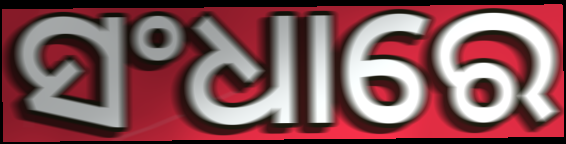
ସଂଧାରେ